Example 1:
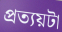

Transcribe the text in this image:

প্রত্যয়টা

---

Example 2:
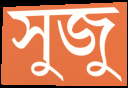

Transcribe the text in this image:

সুজু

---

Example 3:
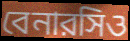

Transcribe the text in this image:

বেনারসিও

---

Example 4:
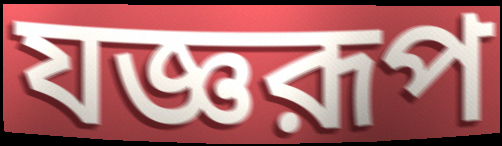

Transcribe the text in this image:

যজ্ঞরূপ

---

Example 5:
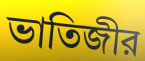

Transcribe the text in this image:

ভাতিজীর